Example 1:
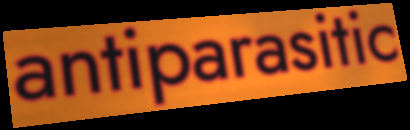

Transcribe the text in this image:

antiparasitic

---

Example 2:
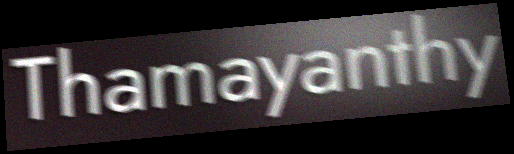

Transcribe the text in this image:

Thamayanthy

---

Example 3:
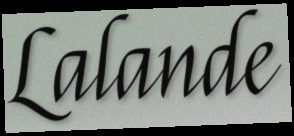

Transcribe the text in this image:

Lalande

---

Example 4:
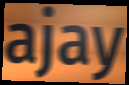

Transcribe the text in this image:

ajay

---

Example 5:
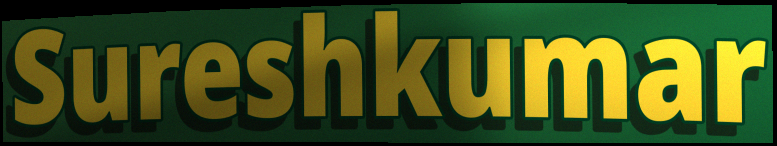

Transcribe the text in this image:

Sureshkumar